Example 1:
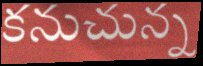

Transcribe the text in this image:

కనుచున్న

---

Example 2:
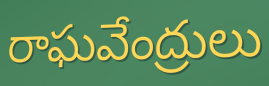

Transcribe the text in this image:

రాఘవేంద్రులు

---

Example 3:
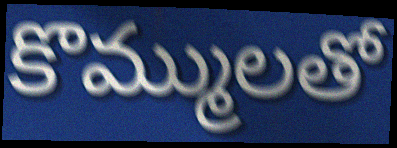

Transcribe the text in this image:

కొమ్ములతో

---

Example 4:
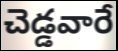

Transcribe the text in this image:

చెడ్డవారే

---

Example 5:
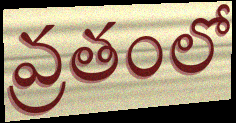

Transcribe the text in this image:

వ్రతంలో